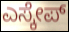
ಎಸ್ಕೇಪ್